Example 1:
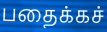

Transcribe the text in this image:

பதைக்கச்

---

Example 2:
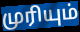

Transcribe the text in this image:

முரியும்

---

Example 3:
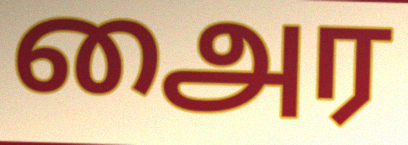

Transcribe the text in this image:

அைர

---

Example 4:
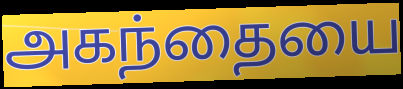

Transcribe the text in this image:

அகந்தையை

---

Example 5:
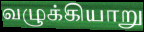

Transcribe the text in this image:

வழுக்கியாறு